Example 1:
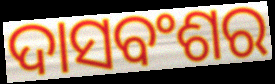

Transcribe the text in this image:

ଦାସବଂଶର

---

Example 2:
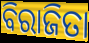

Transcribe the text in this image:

ବିରାଜିତା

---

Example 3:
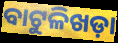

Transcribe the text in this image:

ବାଟୁଳିଖଡ଼ା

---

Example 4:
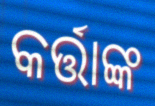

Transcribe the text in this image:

କର୍ତ୍ତାଙ୍କ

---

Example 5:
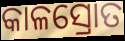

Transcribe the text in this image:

କାଳସ୍ରୋତ